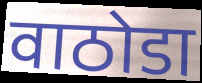
वाठोडा